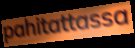
pahitattassa